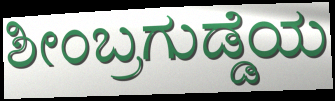
ಶೀಂಬ್ರಗುಡ್ಡೆಯ